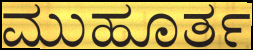
ಮುಹೂರ್ತ